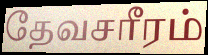
தேவசரீரம்